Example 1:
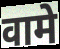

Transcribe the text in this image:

वामे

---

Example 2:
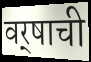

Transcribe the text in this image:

वर्षाची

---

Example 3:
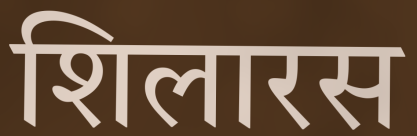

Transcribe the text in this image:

शिलारस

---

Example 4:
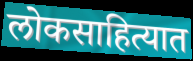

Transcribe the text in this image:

लोकसाहित्यात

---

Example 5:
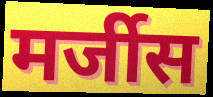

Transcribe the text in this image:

मर्जीस